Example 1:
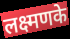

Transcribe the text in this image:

लक्ष्मणके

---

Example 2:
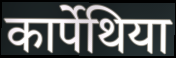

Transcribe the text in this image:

कार्पेथिया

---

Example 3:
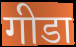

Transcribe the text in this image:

गीडा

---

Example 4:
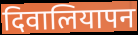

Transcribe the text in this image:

दिवालियापन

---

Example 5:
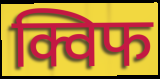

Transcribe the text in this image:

क्विफ